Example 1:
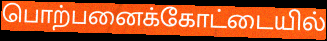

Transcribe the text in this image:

பொற்பனைக்கோட்டையில்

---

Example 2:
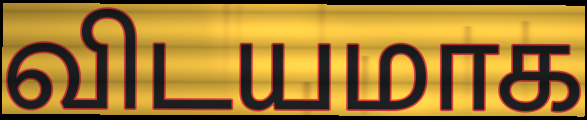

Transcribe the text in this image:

விடயமாக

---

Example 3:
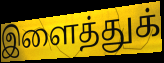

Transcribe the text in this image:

இளைத்துக்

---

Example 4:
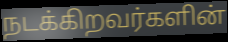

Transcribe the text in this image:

நடக்கிறவர்களின்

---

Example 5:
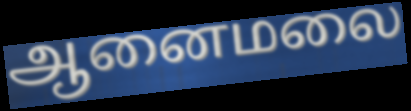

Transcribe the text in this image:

ஆனைமலை